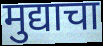
मुद्याचा